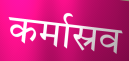
कर्मास्रव